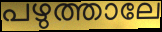
പഴുത്താലേ